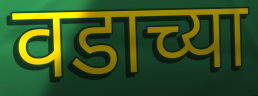
वडाच्या